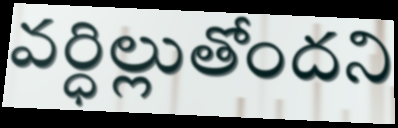
వర్ధిల్లుతోందని